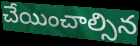
చేయించాల్సిన